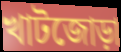
খাটজোড়া